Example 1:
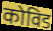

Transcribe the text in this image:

कोविड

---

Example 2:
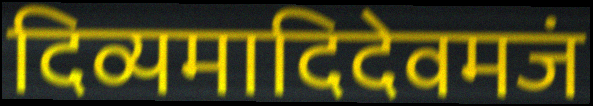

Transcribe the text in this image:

दिव्यमादिदेवमजं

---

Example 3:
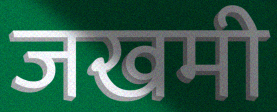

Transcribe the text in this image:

जखमी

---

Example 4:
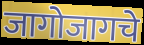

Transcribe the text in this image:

जागोजागचे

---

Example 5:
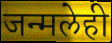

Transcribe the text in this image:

जन्मलेही